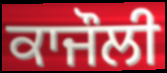
ਕਾਜੌਲੀ